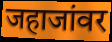
जहाजांवर